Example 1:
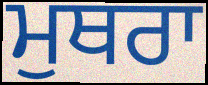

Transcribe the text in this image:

ਮੁਥਰਾ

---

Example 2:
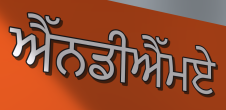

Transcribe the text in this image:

ਐੱਨਡੀਐੱਮਏ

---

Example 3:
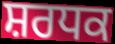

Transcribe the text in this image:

ਸ਼ਰਧਕ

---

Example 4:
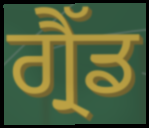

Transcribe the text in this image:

ਗ੍ਰੈੱਡ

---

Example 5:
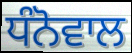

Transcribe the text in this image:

ਧੰਨੋਵਾਲ